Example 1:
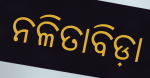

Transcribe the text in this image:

ନଳିତାବିଡ଼ା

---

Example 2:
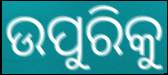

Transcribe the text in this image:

ଉପୁରିକୁ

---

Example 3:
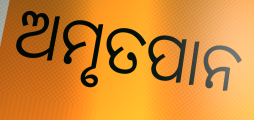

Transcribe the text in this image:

ଅମୃତପାନ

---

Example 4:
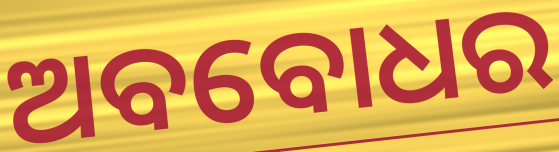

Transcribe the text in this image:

ଅବବୋଧର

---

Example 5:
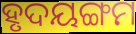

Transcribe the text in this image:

ହୃଦୟଙ୍ଗମ